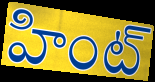
హింట్